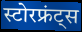
स्टोरफ्रंट्स